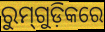
ରୁମ୍‌ଗୁଡ଼ିକରେ